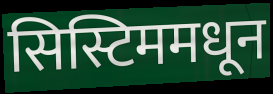
सिस्टिममधून